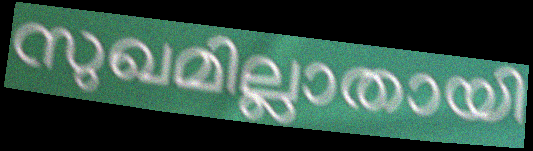
സുഖമില്ലാതായി